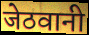
जेठवानी